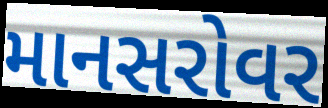
માનસરોવર